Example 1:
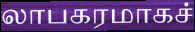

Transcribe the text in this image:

லாபகரமாகச்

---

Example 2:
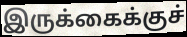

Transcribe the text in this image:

இருக்கைக்குச்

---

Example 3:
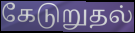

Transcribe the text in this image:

கேடுறுதல்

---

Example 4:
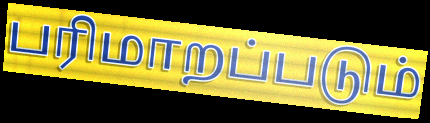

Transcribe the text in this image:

பரிமாறப்படும்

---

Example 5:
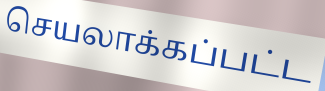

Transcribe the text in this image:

செயலாக்கப்பட்ட